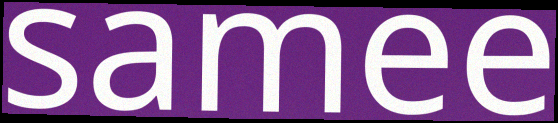
samee